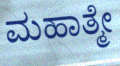
ಮಹಾತ್ಮೇ